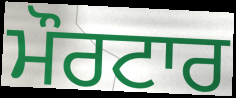
ਮੌਰਟਾਰ